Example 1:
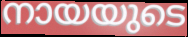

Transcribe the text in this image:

നായയുടെ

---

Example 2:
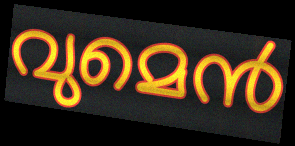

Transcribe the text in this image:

വുമെൻ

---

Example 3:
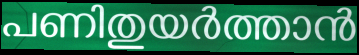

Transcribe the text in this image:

പണിതുയർത്താൻ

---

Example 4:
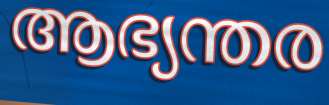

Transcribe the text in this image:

ആഭ്യന്തര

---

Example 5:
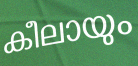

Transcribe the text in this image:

കീലായും